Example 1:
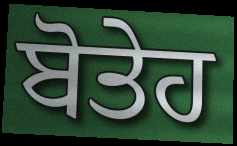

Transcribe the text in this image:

ਬੋਤੇਹ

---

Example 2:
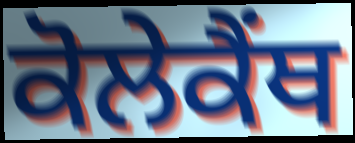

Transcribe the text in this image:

ਕੋਲੇਕੈਂਥ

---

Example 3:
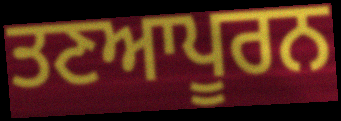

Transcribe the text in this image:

ਤਣਆਪੂਰਨ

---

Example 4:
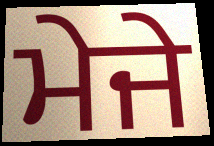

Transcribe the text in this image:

ਮੇਜੇ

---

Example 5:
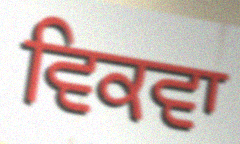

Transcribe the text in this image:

ਵਿਕਵਾ